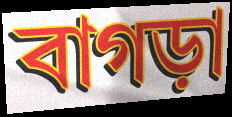
বাগড়া